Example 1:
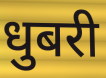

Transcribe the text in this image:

धुबरी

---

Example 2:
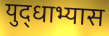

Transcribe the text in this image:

युद्धाभ्यास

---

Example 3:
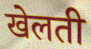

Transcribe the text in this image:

खेलती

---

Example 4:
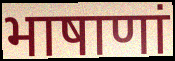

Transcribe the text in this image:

भाषाणां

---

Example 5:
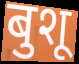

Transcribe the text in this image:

बुशू